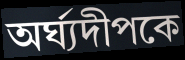
অর্ঘ্যদীপকে